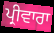
ਪ੍ਰੀਵਾਰਾ